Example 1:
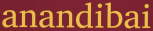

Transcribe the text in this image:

anandibai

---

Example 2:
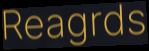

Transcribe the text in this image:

Reagrds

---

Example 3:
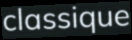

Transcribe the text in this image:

classique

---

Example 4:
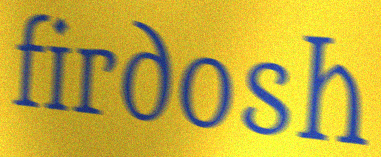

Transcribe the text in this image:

firdosh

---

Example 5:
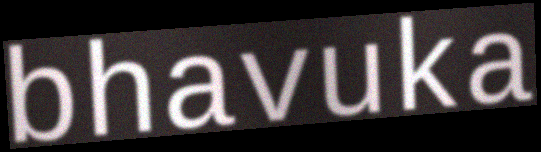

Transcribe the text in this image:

bhavuka